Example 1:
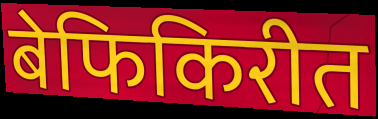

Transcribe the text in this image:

बेफिकिरीत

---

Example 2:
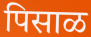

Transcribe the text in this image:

पिसाळ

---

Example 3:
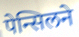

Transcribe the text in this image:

पेन्सिलने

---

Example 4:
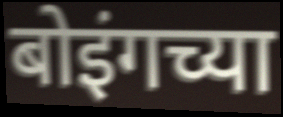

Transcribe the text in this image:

बोइंगच्या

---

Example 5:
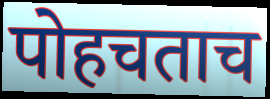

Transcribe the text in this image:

पोहचताच